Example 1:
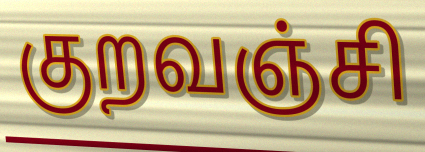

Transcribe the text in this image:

குறவஞ்சி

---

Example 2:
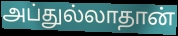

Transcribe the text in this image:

அப்துல்லாதான்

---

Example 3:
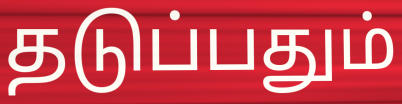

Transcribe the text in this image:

தடுப்பதும்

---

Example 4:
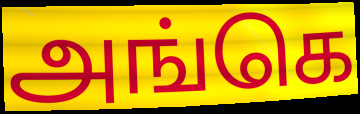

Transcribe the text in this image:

அங்கெ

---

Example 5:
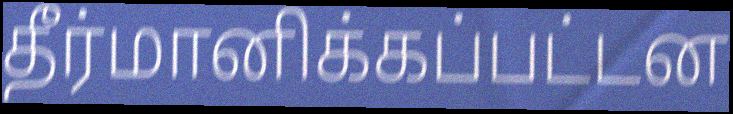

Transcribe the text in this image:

தீர்மானிக்கப்பட்டன